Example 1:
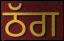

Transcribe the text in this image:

ਠੱਗ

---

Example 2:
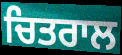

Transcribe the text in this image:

ਚਿਤਰਾਲ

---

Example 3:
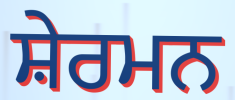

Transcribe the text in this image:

ਸ਼ੇਰਮਨ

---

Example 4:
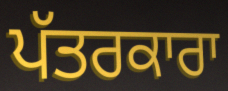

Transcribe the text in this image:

ਪੱਤਰਕਾਰਾ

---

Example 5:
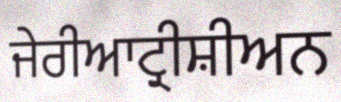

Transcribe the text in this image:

ਜੇਰੀਆਟ੍ਰੀਸ਼ੀਅਨ